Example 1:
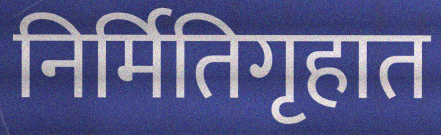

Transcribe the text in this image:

निर्मितिगृहात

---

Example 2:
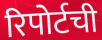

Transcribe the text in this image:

रिपोर्टची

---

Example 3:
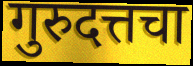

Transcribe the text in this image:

गुरुदत्तचा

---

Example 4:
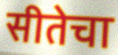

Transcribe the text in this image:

सीतेचा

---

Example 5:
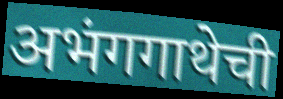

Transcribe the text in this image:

अभंगगाथेची